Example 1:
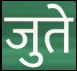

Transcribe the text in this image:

जुते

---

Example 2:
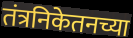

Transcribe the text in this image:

तंत्रनिकेतनच्या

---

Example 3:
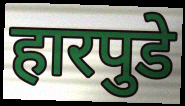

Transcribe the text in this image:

हारपुडे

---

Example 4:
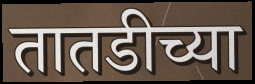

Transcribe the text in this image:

तातडीच्या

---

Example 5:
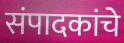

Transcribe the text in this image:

संपादकांचे